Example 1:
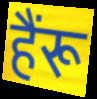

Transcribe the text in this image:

हैंरू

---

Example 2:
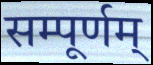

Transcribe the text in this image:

सम्पूर्णम्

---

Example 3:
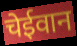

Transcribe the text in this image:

चेईवान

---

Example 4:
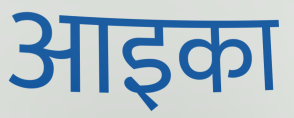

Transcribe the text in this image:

आइका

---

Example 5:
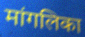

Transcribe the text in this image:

मांगलिका